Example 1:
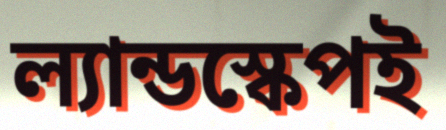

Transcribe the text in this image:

ল্যান্ডস্কেপই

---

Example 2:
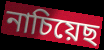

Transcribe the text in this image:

নাচিয়েছ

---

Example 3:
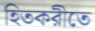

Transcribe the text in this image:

হিতকরীতে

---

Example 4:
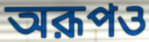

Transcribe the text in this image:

অরূপও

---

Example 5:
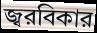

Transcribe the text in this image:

জ্বরবিকার